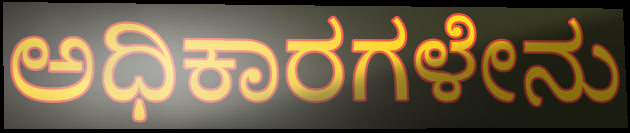
ಅಧಿಕಾರಗಳೇನು